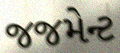
જજમેન્ટ